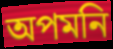
অপমনি